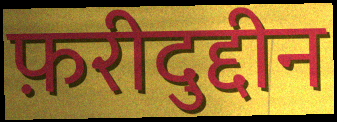
फ़रीदुद्दीन